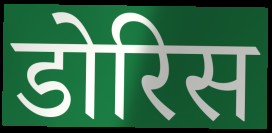
डोरिस